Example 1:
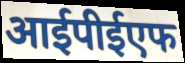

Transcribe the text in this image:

आईपीईएफ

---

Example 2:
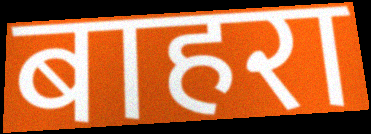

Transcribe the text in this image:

बाहरा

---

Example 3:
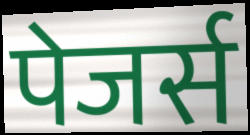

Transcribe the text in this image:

पेजर्स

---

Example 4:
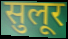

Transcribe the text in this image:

सुलूर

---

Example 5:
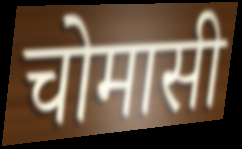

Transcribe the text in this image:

चोमासी